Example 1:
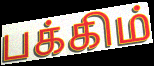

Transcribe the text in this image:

பக்கிம்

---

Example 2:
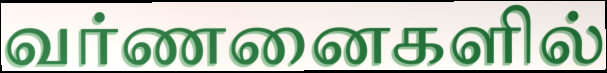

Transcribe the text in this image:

வர்ணனைகளில்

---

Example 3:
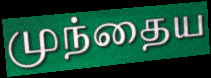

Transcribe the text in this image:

முந்தைய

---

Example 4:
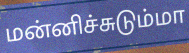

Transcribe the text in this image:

மன்னிச்சுடும்மா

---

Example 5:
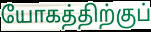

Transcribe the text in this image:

யோகத்திற்குப்